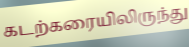
கடற்கரையிலிருந்து